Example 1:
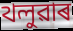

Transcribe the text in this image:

থলুৱাৰ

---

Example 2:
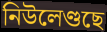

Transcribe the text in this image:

নিউলেণ্ডছে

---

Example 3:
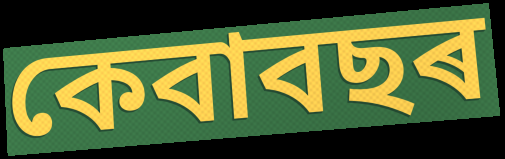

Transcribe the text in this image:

কেবাবছৰ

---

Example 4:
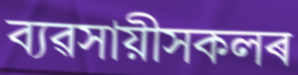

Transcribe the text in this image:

ব্যৱসায়ীসকলৰ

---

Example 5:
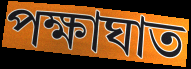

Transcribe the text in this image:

পক্ষাঘাত